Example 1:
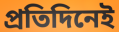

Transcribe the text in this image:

প্ৰতিদিনেই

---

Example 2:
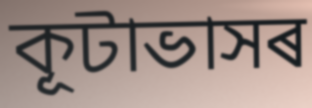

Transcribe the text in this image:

কূটাভাসৰ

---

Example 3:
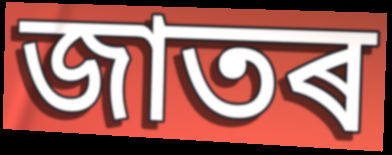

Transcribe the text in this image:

জাতৰ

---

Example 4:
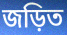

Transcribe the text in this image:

জড়িত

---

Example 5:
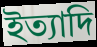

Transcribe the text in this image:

ইত্যাদি